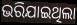
ଭରିଯାଇଥିଲା